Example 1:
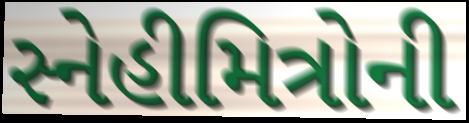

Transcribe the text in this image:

સ્નેહીમિત્રોની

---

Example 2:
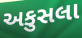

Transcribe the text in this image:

અકુસલા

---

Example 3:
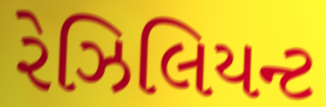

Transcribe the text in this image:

રેઝિલિયન્ટ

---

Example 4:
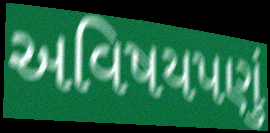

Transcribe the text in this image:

અવિષયપણું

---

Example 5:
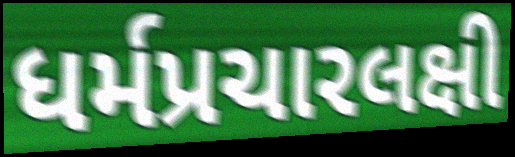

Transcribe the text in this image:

ધર્મપ્રચારલક્ષી